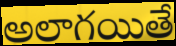
అలాగయితే